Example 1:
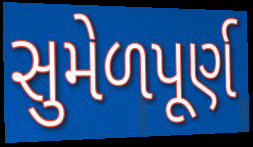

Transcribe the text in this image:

સુમેળપૂર્ણ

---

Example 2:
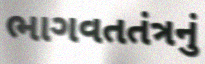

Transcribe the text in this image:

ભાગવતતંત્રનું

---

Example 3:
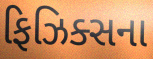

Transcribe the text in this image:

ફિઝિક્સના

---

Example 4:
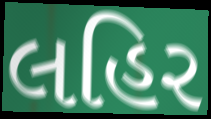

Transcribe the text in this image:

લહિર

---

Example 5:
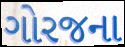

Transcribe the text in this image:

ગોરજના